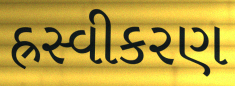
હ્રસ્વીકરણ